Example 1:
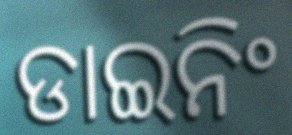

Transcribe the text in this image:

ଡାଇନିଂ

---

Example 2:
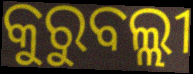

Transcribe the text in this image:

କୁରୁବଲ୍ଲୀ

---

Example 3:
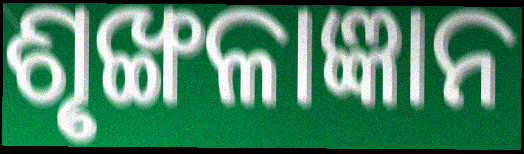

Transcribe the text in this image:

ଶୃଙ୍ଖଳାଜ୍ଞାନ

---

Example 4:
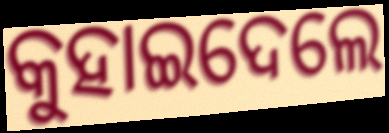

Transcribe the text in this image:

କୁହାଇଦେଲେ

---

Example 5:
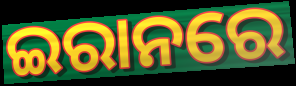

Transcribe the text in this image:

ଇରାନରେ